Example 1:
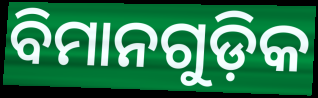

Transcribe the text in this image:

ବିମାନଗୁଡ଼ିକ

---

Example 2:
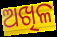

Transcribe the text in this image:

ଅଖିଳ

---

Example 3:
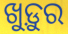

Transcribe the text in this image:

ଖୁଡ଼ୁର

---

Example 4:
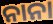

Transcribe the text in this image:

ନାନା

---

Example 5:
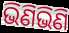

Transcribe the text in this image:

ଭିଣିଭିଣି